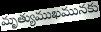
మృత్యుముఖమునకు